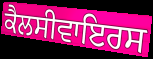
ਕੈਲਸੀਵਾਇਰਸ